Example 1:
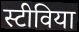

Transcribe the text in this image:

स्टीविया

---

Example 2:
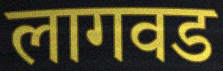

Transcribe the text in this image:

लागवड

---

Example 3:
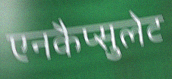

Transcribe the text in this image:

एनकैप्सुलेट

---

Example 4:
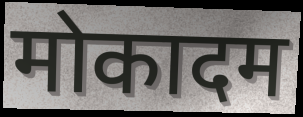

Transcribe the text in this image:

मोकादम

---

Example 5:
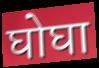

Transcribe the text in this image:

घोघा